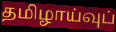
தமிழாய்வுப்